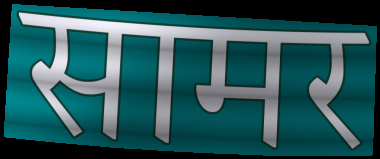
सामर